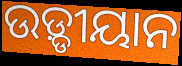
ଉଡ଼୍ଡୀୟାନ